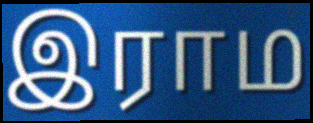
இராம